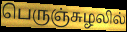
பெருஞ்சுழலில்